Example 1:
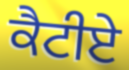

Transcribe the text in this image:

ਕੈਟੀਏ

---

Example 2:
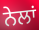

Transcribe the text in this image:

ਨੇਲਾਂ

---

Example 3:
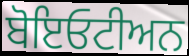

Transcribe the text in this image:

ਬੋਇਓਟੀਅਨ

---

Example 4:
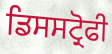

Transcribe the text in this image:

ਡਿਸਸਟ੍ਰੋਫੀ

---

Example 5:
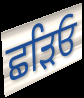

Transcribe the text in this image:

ਛੜਿਓ